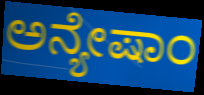
ಅನ್ಯೇಷಾಂ